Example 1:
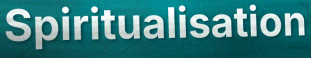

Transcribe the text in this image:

Spiritualisation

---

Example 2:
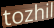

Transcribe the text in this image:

tozhil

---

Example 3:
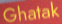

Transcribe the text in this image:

Ghatak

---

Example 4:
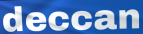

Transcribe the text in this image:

deccan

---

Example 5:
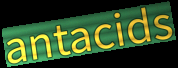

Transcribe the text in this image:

antacids